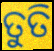
ତୁତି